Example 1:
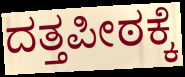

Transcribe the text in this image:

ದತ್ತಪೀಠಕ್ಕೆ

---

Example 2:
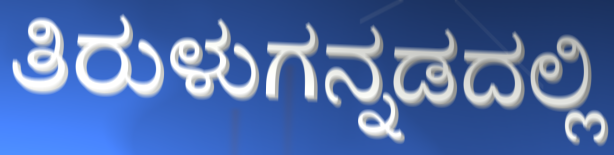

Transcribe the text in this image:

ತಿರುಳುಗನ್ನಡದಲ್ಲಿ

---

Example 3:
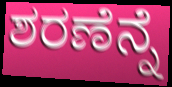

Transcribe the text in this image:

ಶರಣೆನ್ನೆ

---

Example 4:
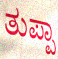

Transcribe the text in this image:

ತುಪ್ಪಾ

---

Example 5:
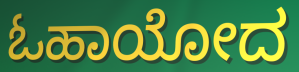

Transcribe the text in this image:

ಓಹಾಯೋದ